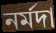
নর্মদা